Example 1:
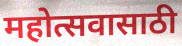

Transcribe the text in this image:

महोत्सवासाठी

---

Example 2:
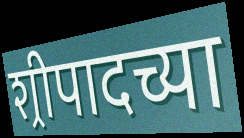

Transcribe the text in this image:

श्रीपादच्या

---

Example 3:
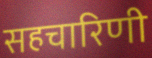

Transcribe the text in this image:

सहचारिणी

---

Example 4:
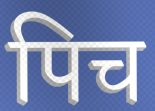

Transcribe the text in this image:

पिच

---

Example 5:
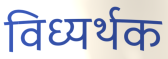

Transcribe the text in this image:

विध्यर्थक